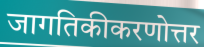
जागतिकीकरणोत्तर